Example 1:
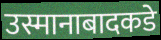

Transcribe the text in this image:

उस्मानाबादकडे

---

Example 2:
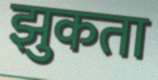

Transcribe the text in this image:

झुकता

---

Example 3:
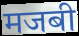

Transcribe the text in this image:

मजबी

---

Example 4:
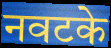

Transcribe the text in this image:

नवटके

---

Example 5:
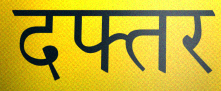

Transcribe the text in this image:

दफ्तर